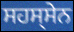
ਸਹਸ੍ਸੇਨ